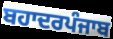
ਬਹਾਦਰਪੰਜਾਬ